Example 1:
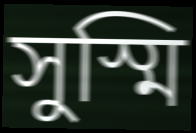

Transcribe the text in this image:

সুস্মি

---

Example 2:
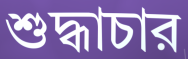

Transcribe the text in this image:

শুদ্ধাচার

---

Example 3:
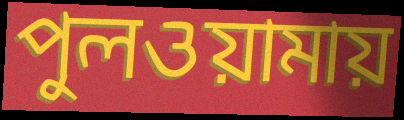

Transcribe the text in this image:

পুলওয়ামায়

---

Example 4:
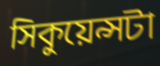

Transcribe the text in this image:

সিকুয়েন্সটা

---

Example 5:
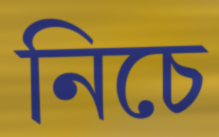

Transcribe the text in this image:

নিচে